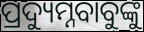
ପ୍ରଦ୍ୟୁମ୍ନବାବୁଙ୍କୁ